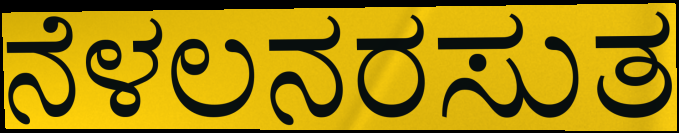
ನೆಳಲನರಸುತ